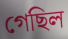
গেছিল